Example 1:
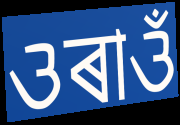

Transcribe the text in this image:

ওৰাওঁ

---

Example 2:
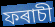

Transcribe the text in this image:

ফৰাচী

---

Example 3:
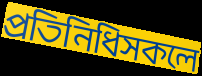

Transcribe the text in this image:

প্ৰতিনিধিসকলে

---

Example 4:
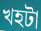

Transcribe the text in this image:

খহটা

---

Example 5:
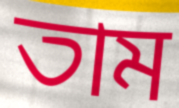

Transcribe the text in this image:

তাম